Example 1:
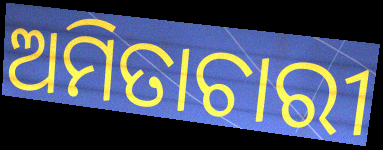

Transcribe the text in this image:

ଅମିତାଚାରୀ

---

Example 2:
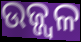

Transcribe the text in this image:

ଉଜ୍ଜ୍ବଳ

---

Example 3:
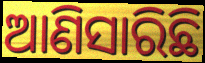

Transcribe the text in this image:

ଆଣିସାରିଛି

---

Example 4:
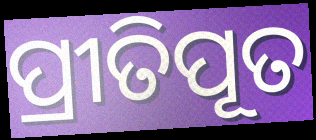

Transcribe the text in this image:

ପ୍ରୀତିପୂତ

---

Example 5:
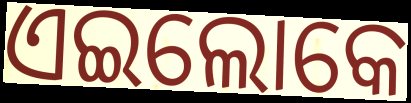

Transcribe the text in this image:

ଏଇଲୋକେ